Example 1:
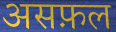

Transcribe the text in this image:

असफ़ल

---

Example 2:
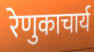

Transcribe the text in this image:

रेणुकाचार्य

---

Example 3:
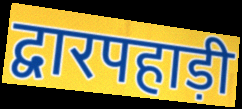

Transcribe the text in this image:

द्वारपहाड़ी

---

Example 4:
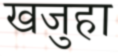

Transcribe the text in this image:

खजुहा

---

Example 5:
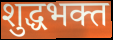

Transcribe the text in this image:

शुद्धभक्त